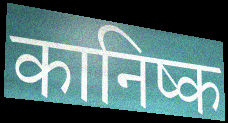
कानिष्क